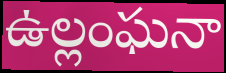
ఉల్లంఘనా